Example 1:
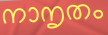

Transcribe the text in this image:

നാനൃതം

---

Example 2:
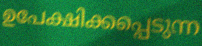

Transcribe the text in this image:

ഉപേക്ഷിക്കപ്പെടുന്ന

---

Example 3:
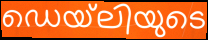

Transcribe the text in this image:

ഡെയ്‌ലിയുടെ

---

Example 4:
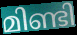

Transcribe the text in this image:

മിണ്ടി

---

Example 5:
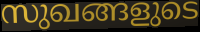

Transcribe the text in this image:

സുഖങ്ങളുടെ